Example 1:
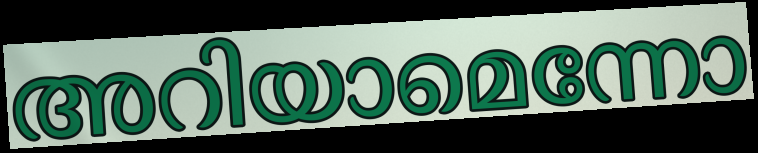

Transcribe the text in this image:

അറിയാമെന്നോ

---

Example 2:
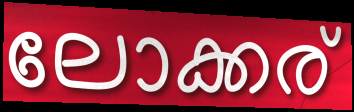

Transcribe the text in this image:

ലോക്കര്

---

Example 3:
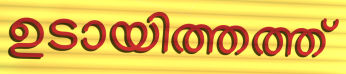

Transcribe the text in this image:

ഉടായിത്തത്ത്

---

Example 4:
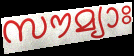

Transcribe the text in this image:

സൗമ്യാഃ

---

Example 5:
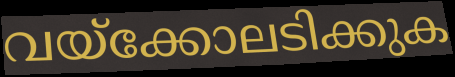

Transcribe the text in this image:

വയ്ക്കോലടിക്കുക